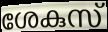
ശേകുസ്